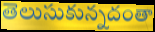
తెలుసుకున్నదంతా